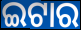
ଇଟାର